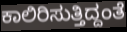
ಕಾಲಿರಿಸುತ್ತಿದ್ದಂತೆ